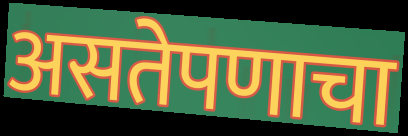
असतेपणाचा